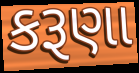
કરૂણા